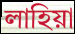
লাহিয়া